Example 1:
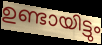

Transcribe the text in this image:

ഉണ്ടായിട്ടും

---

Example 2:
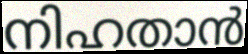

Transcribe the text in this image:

നിഹതാൻ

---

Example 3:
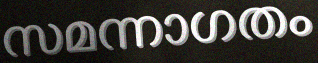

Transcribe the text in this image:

സമന്നാഗതം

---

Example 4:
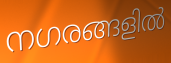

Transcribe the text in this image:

നഗരങ്ങളിൽ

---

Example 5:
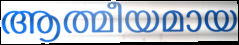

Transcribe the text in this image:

ആത്മീയമായ